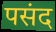
पसंद